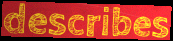
describes